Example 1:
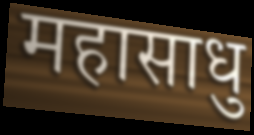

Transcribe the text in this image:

महासाधु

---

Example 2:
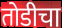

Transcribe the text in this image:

तोडीचा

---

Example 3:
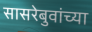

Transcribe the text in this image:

सासरेबुवांच्या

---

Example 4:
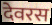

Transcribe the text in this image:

देवरस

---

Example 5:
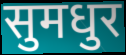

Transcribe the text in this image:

सुमधुर